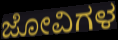
ಜೋವಿಗಳ